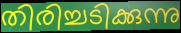
തിരിച്ചടിക്കുന്നു